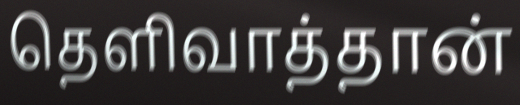
தெளிவாத்தான்